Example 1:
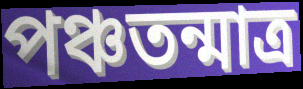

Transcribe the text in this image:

পঞ্চতন্মাত্র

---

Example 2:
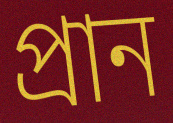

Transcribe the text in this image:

প্রান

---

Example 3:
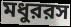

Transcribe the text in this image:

মধুররস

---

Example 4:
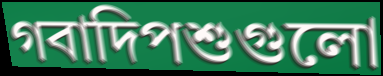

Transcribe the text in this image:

গবাদিপশুগুলো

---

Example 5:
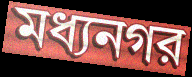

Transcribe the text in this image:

মধ্যনগর